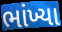
ભાંખ્યા